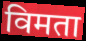
विमता